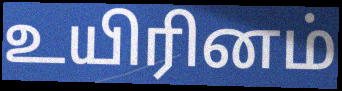
உயிரினம்